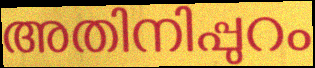
അതിനിപ്പുറം